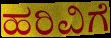
ಹರಿವಿಗೆ